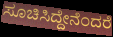
ಸೂಚಿಸಿದ್ದೇನೆಂದರೆ